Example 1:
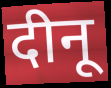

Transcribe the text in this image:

दीनू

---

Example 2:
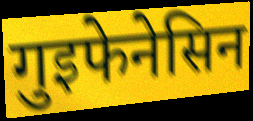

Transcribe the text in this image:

गुइफेनेसिन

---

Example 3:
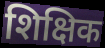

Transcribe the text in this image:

शिक्षिक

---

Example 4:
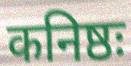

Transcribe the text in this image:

कनिष्ठः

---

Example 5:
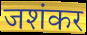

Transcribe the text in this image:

जशंकर